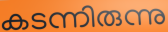
കടന്നിരുന്നു